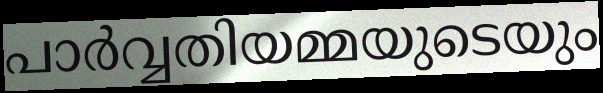
പാർവ്വതിയമ്മയുടെയും